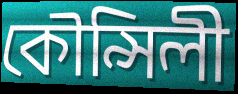
কৌন্সিলী